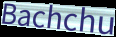
Bachchu